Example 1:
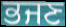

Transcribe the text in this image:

ਭਜਣ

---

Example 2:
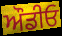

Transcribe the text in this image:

ਔਡੀਓ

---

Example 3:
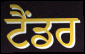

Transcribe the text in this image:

ਟੈਂਡਰ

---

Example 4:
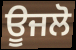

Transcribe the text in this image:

ਊਜਲੋ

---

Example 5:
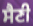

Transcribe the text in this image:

ਸੈਣੀ